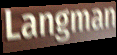
Langman